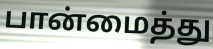
பான்மைத்து